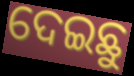
ଦେଇଛୁ